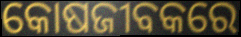
କୋଷଜୀବକରେ